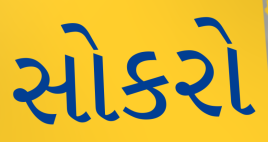
સોકરો